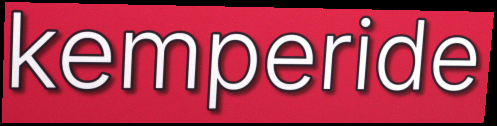
kemperide